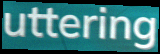
uttering